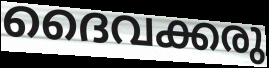
ദൈവക്കരു